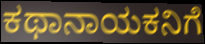
ಕಥಾನಾಯಕನಿಗೆ